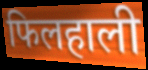
फिलहाली